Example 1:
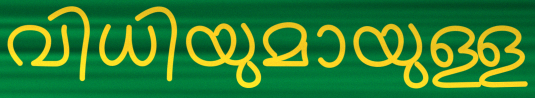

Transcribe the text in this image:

വിധിയുമായുള്ള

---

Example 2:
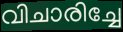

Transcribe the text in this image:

വിചാരിച്ചേ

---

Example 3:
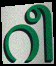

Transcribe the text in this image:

റീ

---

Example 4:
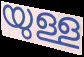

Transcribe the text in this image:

യുള്ള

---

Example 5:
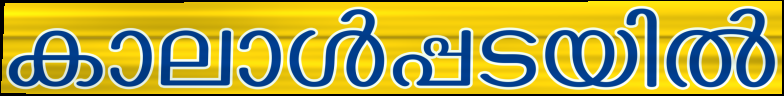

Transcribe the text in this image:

കാലാൾപ്പടയിൽ